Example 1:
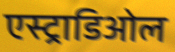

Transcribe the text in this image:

एस्ट्राडिओल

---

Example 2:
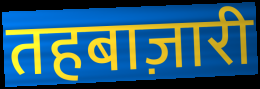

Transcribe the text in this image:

तहबाज़ारी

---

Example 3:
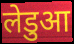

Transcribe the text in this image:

लेडुआ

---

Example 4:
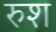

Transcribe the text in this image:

रुश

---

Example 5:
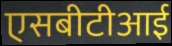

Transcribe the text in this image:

एसबीटीआई